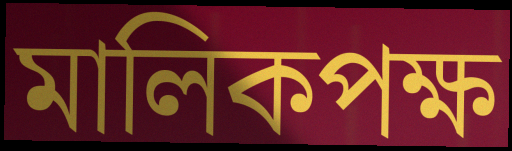
মালিকপক্ষ